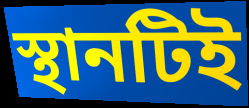
স্থানটিই